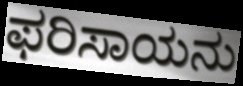
ಫರಿಸಾಯನು